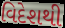
વિદેશથી